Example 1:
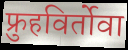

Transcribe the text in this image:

फ्रुहविर्तोवा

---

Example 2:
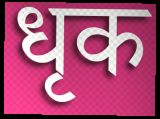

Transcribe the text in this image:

धृक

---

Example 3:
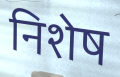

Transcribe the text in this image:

निशेष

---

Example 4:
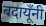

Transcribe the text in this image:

बदायूँनी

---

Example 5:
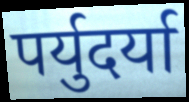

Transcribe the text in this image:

पर्युदर्या